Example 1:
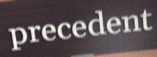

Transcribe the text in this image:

precedent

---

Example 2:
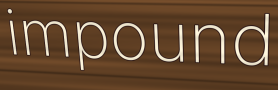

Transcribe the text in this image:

impound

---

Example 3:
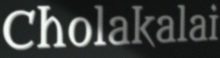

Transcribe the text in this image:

Cholakalai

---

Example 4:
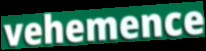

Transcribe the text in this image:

vehemence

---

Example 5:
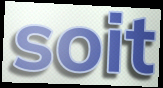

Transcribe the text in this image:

soit